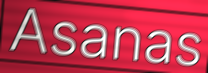
Asanas